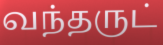
வந்தருட்